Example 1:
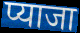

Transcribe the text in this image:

प्याजा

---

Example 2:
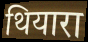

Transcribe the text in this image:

थियारा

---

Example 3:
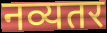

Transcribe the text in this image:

नव्यतर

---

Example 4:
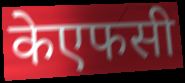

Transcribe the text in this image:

केएफसी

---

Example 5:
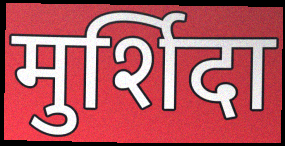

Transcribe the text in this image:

मुर्शिदा